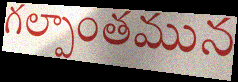
గల్పాంతమున